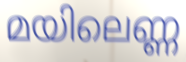
മയിലെണ്ണ